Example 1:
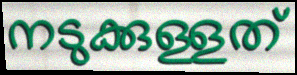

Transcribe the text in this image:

നടുക്കുള്ളത്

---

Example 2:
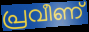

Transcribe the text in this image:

പ്രവീണ്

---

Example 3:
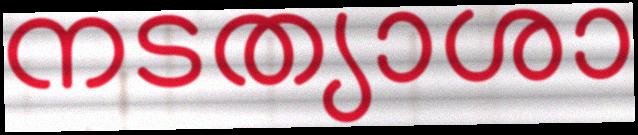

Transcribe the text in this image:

നടത്യാശാ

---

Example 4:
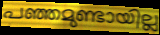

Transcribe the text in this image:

പഞ്ഞമുണ്ടായില്ല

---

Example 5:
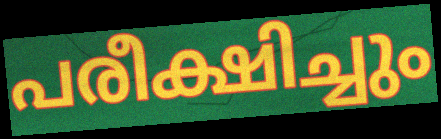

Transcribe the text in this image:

പരീക്ഷിച്ചും